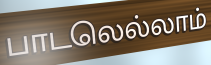
பாடலெல்லாம்